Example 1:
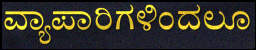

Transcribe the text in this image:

ವ್ಯಾಪಾರಿಗಳಿಂದಲೂ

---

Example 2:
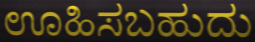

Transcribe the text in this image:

ಊಹಿಸಬಹುದು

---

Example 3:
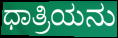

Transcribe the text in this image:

ಧಾತ್ರಿಯನು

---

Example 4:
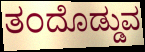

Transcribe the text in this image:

ತಂದೊಡ್ಡುವ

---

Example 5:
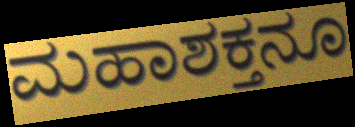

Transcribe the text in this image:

ಮಹಾಶಕ್ತನೂ